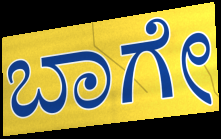
ಬಾಗೇ